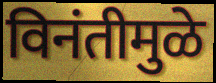
विनंतीमुळे